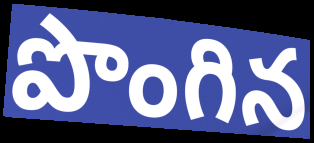
పొంగిన